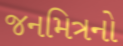
જનમિત્રનો